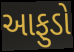
આફુડો